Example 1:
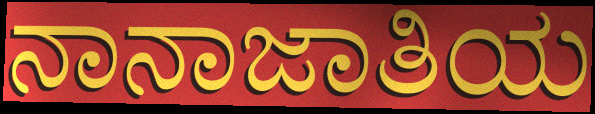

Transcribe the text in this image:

ನಾನಾಜಾತಿಯ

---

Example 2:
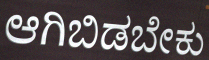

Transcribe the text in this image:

ಆಗಿಬಿಡಬೇಕು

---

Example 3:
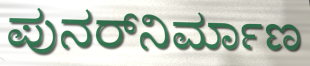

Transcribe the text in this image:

ಪುನರ್‌ನಿರ್ಮಾಣ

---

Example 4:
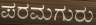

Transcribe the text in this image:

ಪರಮಗುರು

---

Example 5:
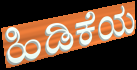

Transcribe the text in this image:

ಹಿಡಿಕೆಯ